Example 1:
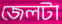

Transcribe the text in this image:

জেলটা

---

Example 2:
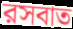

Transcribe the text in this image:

রসবাত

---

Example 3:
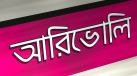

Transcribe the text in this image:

আরিভোলি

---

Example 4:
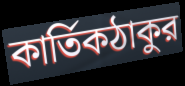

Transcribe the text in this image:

কার্তিকঠাকুর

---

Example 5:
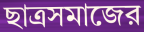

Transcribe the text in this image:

ছাত্রসমাজের